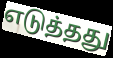
எடுத்தது